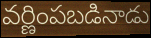
వర్ణింపబడినాడు